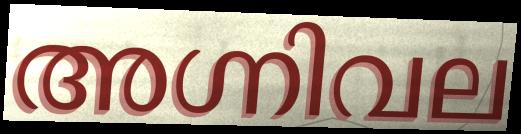
അഗ്നിവല